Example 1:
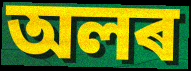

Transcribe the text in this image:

অলৰ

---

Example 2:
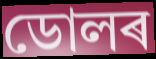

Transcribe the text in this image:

ডোলৰ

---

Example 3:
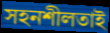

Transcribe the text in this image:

সহনশীলতাই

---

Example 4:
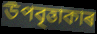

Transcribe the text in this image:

উপবৃত্তাকাৰ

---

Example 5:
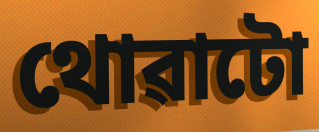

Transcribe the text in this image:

থোৱাটো